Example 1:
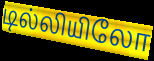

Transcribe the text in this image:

டில்லியிலோ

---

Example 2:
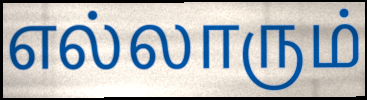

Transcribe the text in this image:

எல்லாரும்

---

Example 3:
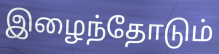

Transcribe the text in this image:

இழைந்தோடும்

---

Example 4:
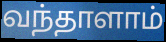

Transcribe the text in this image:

வந்தாளாம்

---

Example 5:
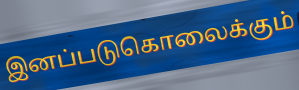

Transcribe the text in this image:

இனப்படுகொலைக்கும்